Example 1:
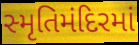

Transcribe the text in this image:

સ્મૃતિમંદિરમાં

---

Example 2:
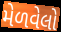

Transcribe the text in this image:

મેળવેલો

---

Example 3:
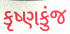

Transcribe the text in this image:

કૃષ્ણકુંજ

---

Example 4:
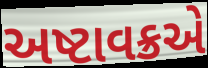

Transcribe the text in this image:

અષ્ટાવક્રએ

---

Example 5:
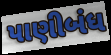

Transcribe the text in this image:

પાણીબંધ